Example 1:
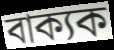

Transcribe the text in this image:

বাক্যক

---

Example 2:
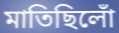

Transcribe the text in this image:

মাতিছিলোঁ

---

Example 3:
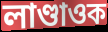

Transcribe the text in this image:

লাণ্ডাওক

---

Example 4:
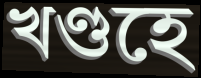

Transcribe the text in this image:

খণ্ডহে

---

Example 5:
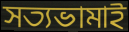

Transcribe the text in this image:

সত্যভামাই